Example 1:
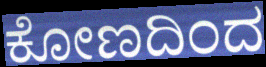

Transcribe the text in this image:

ಕೋಣದಿಂದ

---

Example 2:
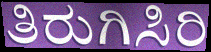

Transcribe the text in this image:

ತಿರುಗಿಸಿರಿ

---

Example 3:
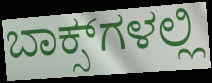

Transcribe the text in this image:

ಬಾಕ್ಸ್‌ಗಳಲ್ಲಿ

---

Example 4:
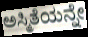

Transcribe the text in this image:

ಅಸ್ಮಿತೆಯನ್ನೇ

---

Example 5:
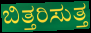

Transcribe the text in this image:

ಬಿತ್ತರಿಸುತ್ತ